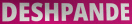
DESHPANDE